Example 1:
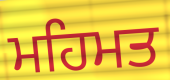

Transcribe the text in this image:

ਮਹਿਮਤ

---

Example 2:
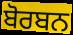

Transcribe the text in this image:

ਬੋਰਬਨ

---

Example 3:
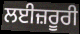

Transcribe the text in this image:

ਲਈਜ਼ਰੂਰੀ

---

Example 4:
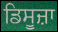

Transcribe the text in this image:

ਡਿਸੂਜ਼ਾ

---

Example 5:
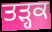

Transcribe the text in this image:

ਤੜ੍ਹਕ